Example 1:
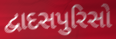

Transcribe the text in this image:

દ્વાદસપુરિસો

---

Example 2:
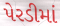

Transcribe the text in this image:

પેરડીમાં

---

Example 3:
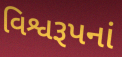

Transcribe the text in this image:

વિશ્વરૂપનાં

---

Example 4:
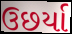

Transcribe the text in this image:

ઉછર્યા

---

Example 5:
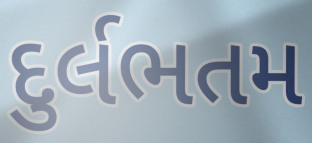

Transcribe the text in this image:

દુર્લભતમ